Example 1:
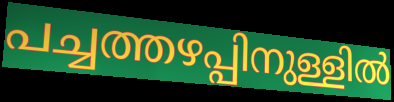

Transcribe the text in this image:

പച്ചത്തഴപ്പിനുള്ളിൽ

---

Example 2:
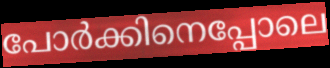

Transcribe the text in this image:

പോർക്കിനെപ്പോലെ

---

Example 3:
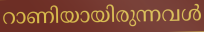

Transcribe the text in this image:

റാണിയായിരുന്നവൾ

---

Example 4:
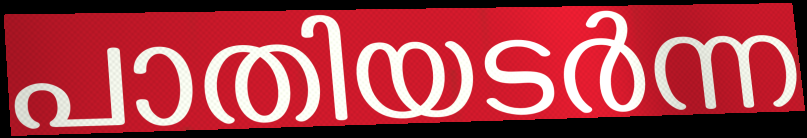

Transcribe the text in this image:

പാതിയടർന്ന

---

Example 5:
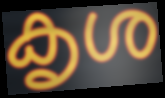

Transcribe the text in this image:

കൃശ